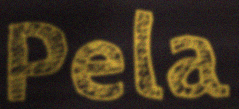
Pela